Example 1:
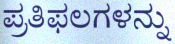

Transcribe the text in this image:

ಪ್ರತಿಫಲಗಳನ್ನು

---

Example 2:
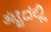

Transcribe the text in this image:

ತಟ್ಟಿದಲ್ಲಿ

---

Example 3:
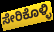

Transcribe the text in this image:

ಸೇರಿಕೊಳ್ಳಿ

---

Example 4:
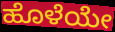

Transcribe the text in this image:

ಹೊಳೆಯೇ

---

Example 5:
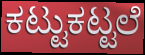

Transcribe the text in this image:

ಕಟ್ಟುಕಟ್ಟಲೆ